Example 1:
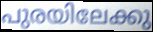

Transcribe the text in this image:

പുരയിലേക്കു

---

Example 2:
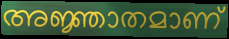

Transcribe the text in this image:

അജ്ഞാതമാണ്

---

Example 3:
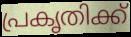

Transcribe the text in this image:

പ്രകൃതിക്ക്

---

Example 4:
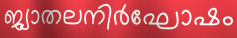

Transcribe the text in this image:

ജ്യാതലനിർഘോഷം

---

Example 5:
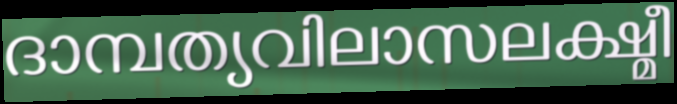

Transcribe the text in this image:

ദാമ്പത്യവിലാസലക്ഷ്മീ